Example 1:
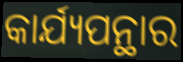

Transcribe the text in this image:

କାର୍ଯ୍ୟପନ୍ଥାର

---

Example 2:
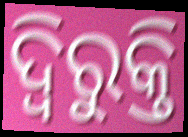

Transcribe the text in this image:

ଦ୍ୱିରୁକ୍ତି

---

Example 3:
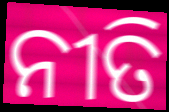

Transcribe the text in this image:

ନୀତି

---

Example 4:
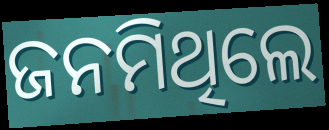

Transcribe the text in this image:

ଜନମିଥିଲେ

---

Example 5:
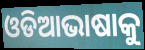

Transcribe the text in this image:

ଓଡିଆଭାଷାକୁ